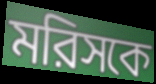
মরিসকে